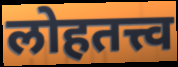
लोहतत्त्व